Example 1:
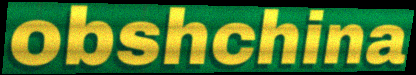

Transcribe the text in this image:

obshchina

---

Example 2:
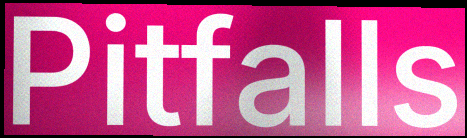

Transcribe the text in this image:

Pitfalls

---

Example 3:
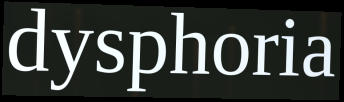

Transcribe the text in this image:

dysphoria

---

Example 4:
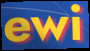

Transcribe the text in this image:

ewi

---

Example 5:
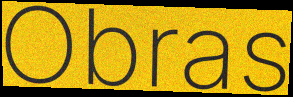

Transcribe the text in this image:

Obras